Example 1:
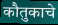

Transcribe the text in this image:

कौतुकाचे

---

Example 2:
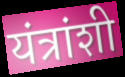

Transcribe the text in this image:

यंत्रांशी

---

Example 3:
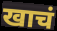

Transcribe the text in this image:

खाचं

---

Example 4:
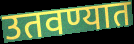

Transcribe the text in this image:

उतवण्यात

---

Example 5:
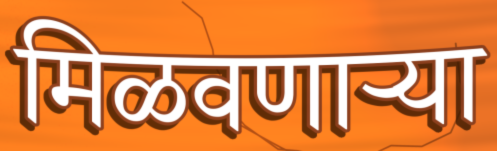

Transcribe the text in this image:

मिळवणाऱ्या